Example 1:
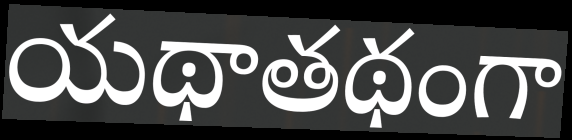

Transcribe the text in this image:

యథాతథంగా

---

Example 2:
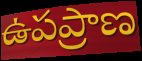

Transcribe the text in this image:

ఉపప్రాణ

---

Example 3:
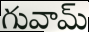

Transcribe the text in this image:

గువామ్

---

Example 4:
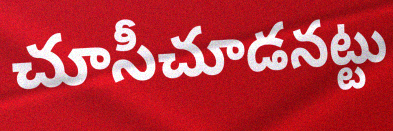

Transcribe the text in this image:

చూసీచూడనట్టు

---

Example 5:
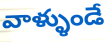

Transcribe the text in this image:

వాళ్ళుండే